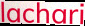
lachari